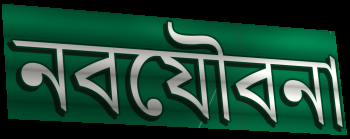
নবযৌবনা